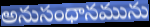
అనుసంధానమును